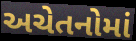
અચેતનોમાં